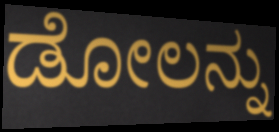
ಡೋಲನ್ನು